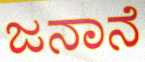
ಜನಾನೆ